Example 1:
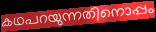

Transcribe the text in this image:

കഥപറയുന്നതിനൊപ്പം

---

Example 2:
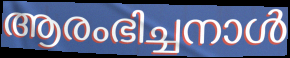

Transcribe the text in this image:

ആരംഭിച്ചനാൾ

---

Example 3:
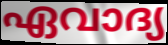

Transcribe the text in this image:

ഏവാദ്യ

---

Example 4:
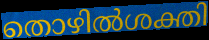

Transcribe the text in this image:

തൊഴിൽശക്തി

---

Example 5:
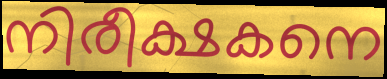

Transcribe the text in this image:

നിരീക്ഷകനെ